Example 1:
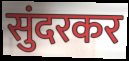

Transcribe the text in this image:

सुंदरकर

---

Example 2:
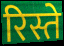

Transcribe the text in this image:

रिस्ते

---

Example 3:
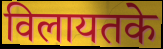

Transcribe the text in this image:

विलायतके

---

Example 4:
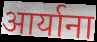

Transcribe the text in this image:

आर्याना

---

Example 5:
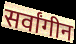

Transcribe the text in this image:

सर्वांगीन